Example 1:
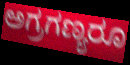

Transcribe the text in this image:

ಅಗ್ರಗಣ್ಯರೂ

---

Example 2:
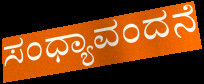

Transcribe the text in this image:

ಸಂಧ್ಯಾವಂದನೆ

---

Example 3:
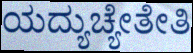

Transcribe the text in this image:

ಯದ್ಯುಚ್ಯೇತೇತಿ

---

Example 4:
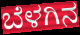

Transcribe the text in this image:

ಬೆಳಗಿನ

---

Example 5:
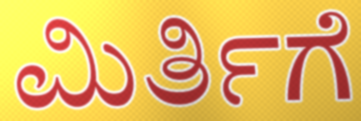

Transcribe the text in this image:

ಮಿರ್ತಿಗೆ